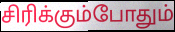
சிரிக்கும்போதும்